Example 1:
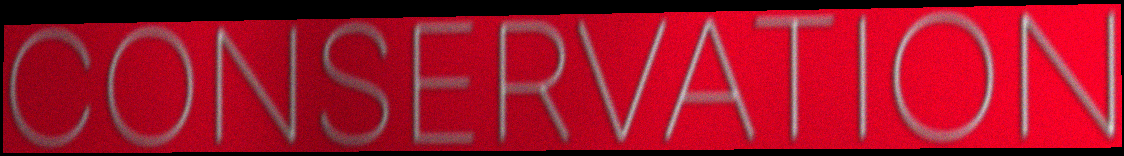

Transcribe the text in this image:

CONSERVATION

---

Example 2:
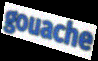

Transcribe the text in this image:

gouache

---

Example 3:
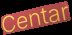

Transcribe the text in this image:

Centar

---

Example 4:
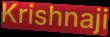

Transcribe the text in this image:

Krishnaji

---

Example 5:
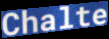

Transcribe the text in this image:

Chalte